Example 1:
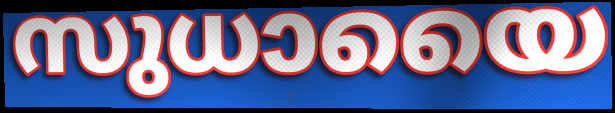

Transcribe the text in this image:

സുധായൈ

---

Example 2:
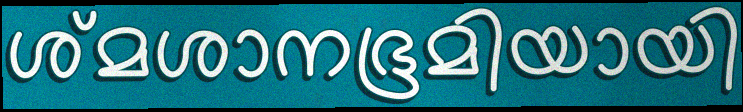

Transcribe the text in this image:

ശ്മശാനഭൂമിയായി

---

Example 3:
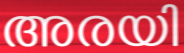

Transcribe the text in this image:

അരയി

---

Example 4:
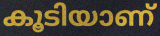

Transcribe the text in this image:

കൂടിയാണ്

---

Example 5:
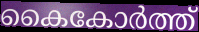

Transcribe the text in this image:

കൈകോർത്ത്